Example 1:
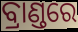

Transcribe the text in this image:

ବ୍ରାଣ୍ଡରେ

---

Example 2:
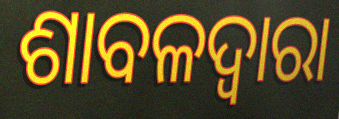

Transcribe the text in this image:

ଶାବଳଦ୍ୱାରା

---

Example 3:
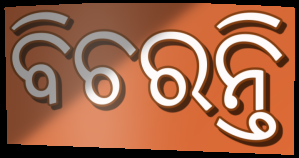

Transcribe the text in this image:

ବିଚରନ୍ତି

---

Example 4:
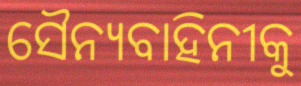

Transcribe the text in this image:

ସୈନ୍ୟବାହିନୀକୁ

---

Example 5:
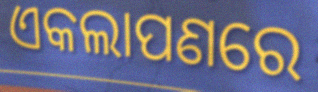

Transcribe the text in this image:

ଏକଲାପଣରେ